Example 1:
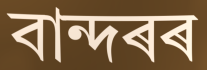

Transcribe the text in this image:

বান্দৰৰ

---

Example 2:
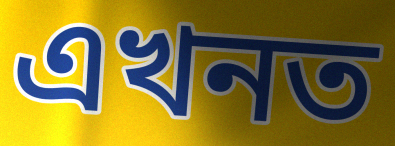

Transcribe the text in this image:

এখনত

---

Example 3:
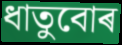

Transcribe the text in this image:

ধাতুবোৰ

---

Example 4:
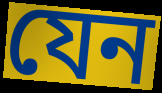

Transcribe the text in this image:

যেন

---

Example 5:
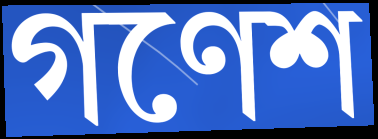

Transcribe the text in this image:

গণেশ